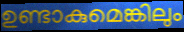
ഉണ്ടാകുമെങ്കിലും